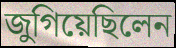
জুগিয়েছিলেন